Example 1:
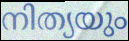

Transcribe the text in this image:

നിത്യയും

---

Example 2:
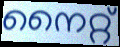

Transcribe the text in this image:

നൈറ്റ്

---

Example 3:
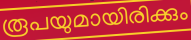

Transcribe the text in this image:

രൂപയുമായിരിക്കും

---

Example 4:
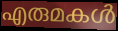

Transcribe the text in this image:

എരുമകൾ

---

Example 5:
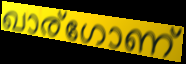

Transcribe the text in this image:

ഖാര്ഗോണ്